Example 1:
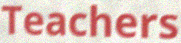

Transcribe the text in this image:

Teachers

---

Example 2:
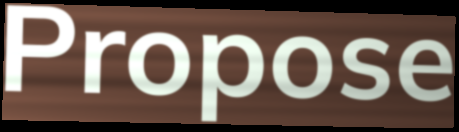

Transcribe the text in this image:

Propose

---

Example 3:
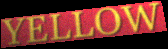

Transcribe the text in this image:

YELLOW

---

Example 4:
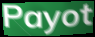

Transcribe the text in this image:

Payot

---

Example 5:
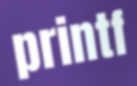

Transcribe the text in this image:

printf